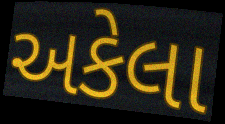
અકેલા